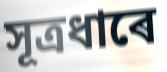
সূত্ৰধাৰে